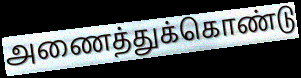
அணைத்துக்கொண்டு